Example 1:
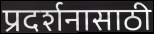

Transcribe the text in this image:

प्रदर्शनासाठी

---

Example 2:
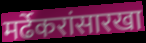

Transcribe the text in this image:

मर्ढेकरांसारखा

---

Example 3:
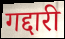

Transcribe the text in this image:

गद्दारी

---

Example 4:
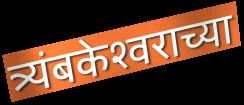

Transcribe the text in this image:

त्र्यंबकेश्वराच्या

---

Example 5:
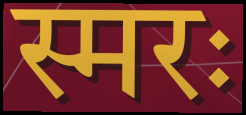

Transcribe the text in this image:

स्मरः